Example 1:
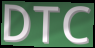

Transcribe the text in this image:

DTC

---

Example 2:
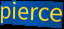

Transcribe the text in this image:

pierce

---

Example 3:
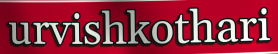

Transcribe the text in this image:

urvishkothari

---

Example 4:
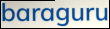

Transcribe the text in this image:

baraguru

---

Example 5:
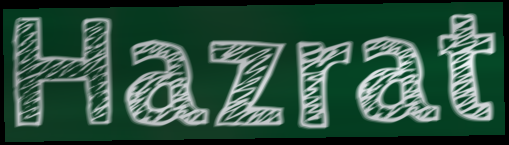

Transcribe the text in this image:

Hazrat